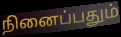
நினைப்பதும்